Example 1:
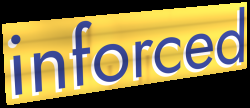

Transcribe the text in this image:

inforced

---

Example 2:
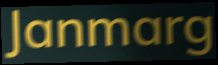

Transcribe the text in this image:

Janmarg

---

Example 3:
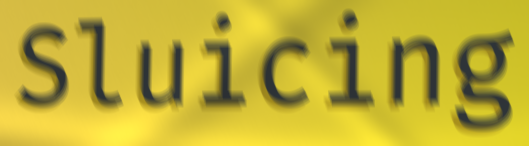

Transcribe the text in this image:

Sluicing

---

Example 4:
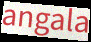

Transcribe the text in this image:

angala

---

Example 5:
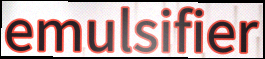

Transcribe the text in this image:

emulsifier